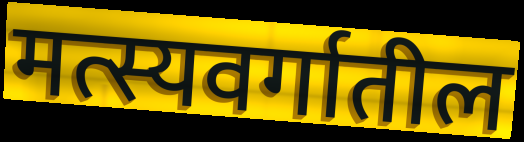
मत्स्यवर्गातील